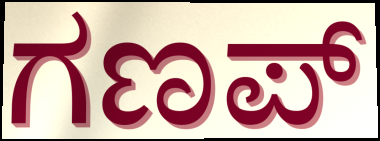
ಗಣಪ್